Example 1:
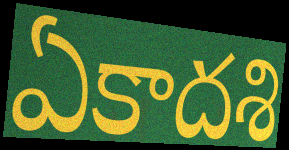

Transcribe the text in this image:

ఏకాదశి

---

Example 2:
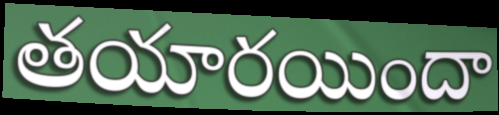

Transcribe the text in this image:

తయారయిందా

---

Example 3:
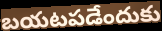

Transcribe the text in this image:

బయటపడేందుకు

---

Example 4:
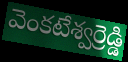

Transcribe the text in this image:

వెంకటేశ్వర్రెడ్డి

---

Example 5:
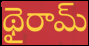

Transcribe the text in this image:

థైరామ్